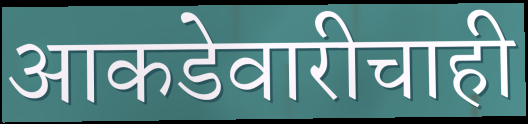
आकडेवारीचाही